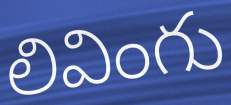
లివింగు